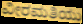
ವೀರಮತಿಯು